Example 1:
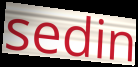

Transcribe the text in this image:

sedin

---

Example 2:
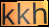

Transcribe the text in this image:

kkh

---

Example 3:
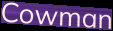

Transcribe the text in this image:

Cowman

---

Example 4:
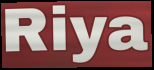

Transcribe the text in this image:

Riya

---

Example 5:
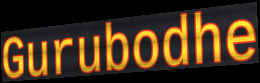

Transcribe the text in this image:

Gurubodhe